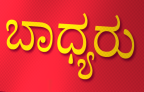
ಬಾಧ್ಯರು